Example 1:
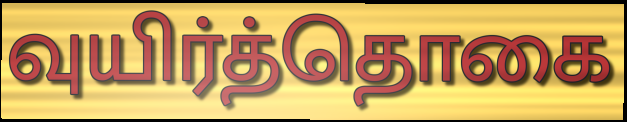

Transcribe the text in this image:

வுயிர்த்தொகை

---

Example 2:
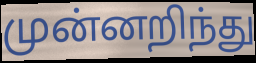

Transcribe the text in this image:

முன்னறிந்து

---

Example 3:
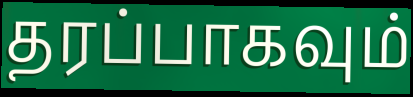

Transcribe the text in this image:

தரப்பாகவும்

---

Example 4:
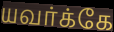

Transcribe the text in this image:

யவர்க்கே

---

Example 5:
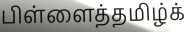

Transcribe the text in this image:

பிள்ளைத்தமிழ்க்